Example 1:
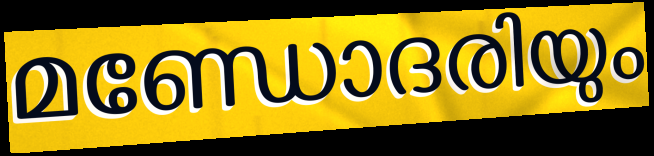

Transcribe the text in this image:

മണ്ഡോദരിയും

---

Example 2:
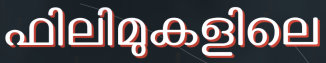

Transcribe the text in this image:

ഫിലിമുകളിലെ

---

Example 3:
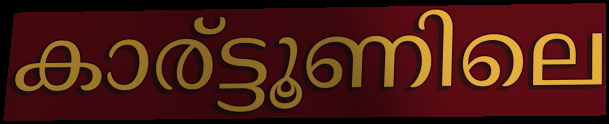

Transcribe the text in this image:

കാര്ട്ടൂണിലെ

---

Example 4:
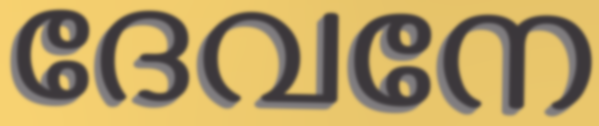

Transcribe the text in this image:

ദേവനേ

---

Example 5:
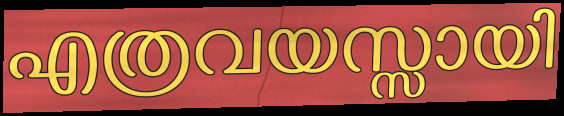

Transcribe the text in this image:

എത്രവയസ്സായി